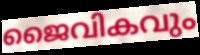
ജൈവികവും